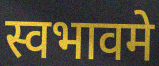
स्वभावमे